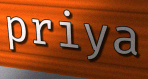
priya